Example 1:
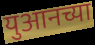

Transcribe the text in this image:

युआनच्या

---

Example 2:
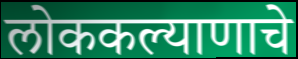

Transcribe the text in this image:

लोककल्याणाचे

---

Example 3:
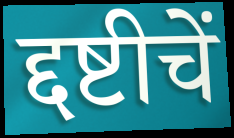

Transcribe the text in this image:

द्दष्टीचें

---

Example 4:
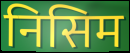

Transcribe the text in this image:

निसिम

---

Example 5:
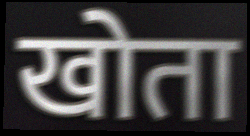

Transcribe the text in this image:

खोता